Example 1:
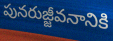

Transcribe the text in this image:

పునరుజ్జీవనానికి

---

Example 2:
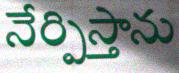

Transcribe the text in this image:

నేర్పిస్తాను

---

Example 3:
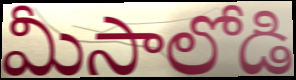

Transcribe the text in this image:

మీసాలోడి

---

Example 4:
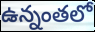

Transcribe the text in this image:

ఉన్నంతలో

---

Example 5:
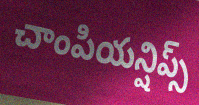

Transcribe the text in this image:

చాంపియన్షిప్స్